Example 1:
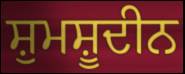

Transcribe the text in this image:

ਸ਼ੁਮਸ਼ੂਦੀਨ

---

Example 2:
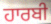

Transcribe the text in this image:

ਹਾਰਬੀ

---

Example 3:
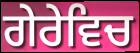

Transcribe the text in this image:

ਗੇਰੇਵਿਚ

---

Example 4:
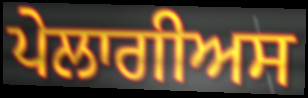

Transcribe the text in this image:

ਪੇਲਾਗੀਅਸ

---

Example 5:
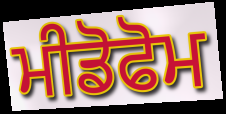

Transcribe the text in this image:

ਮੀਡੋਫੋਮ